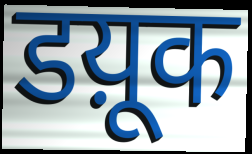
डय़ूक